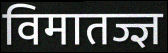
विमातज्ज्ञ